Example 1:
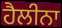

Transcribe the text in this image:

ਹੈਲੀਨਾ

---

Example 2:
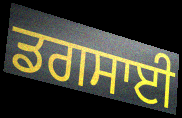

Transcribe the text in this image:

ਡਗਸਾਈ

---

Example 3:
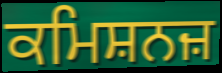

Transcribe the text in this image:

ਕਮਿਸ਼ਨਜ਼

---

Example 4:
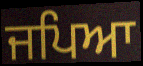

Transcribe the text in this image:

ਜਪਿਆ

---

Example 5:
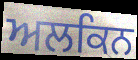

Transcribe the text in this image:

ਅਲਕਿਨ